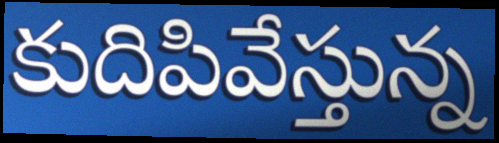
కుదిపివేస్తున్న